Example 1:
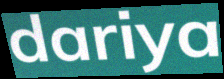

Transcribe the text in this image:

dariya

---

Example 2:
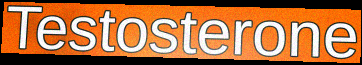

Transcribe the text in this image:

Testosterone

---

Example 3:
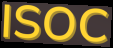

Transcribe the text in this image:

ISOC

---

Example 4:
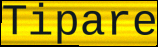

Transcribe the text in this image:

Tipare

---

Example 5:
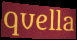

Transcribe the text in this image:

quella